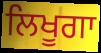
ਲਿਖੂਗਾ